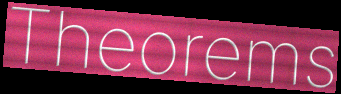
Theorems